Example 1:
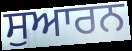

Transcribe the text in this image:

ਸੁਆਰਨ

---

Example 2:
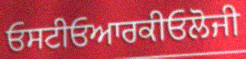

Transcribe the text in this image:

ਓਸਟੀਓਆਰਕੀਓਲੋਜੀ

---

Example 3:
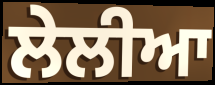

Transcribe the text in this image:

ਲੇਲੀਆ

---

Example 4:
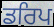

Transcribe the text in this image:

ਡਰਿਪ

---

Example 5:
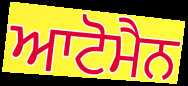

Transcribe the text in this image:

ਆਟੋਮੈਨ